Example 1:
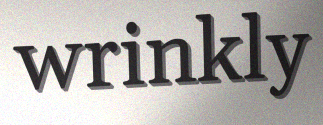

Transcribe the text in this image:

wrinkly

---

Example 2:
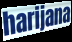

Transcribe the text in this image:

harijana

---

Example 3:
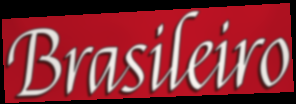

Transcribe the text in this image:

Brasileiro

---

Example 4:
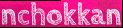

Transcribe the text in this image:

nchokkan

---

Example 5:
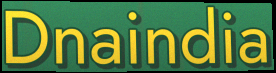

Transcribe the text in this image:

Dnaindia